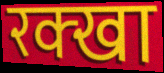
रक्‍खा